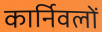
कार्निवलों